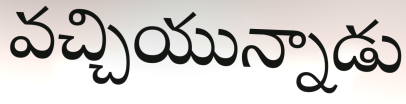
వచ్చియున్నాడు